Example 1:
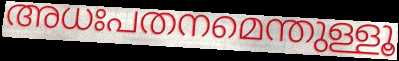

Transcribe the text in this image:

അധഃപതനമെന്തുള്ളൂ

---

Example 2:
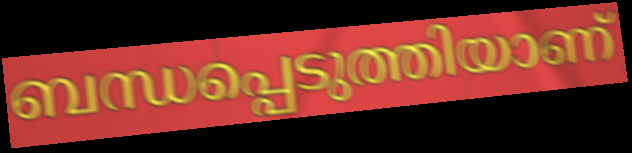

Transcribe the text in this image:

ബന്ധപ്പെടുത്തിയാണ്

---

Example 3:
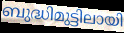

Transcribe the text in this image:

ബുദ്ധിമുട്ടിലായി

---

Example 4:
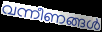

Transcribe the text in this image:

വന്നീണങ്ങൾ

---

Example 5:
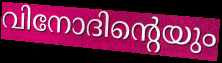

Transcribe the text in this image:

വിനോദിന്റെയും